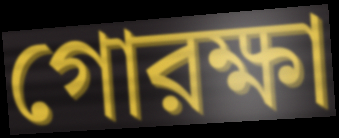
গোরক্ষা